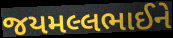
જયમલ્લભાઈને